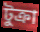
টুক্রা